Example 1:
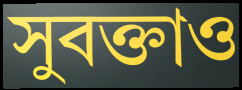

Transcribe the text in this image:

সুবক্তাও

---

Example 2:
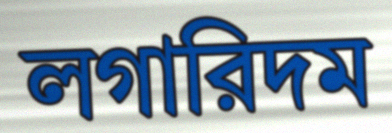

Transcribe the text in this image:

লগারিদম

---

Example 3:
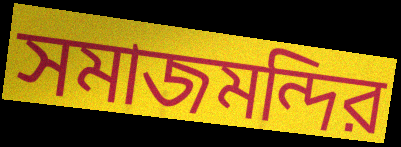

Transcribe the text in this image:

সমাজমন্দির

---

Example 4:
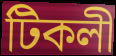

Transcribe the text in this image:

টিকলী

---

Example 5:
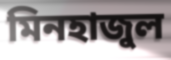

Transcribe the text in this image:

মিনহাজুল